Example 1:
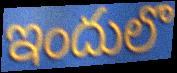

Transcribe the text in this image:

ఇందులొ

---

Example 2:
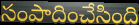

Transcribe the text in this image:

సంపాదించేసింది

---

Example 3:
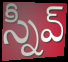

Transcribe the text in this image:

స్నీవ్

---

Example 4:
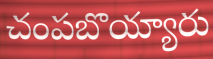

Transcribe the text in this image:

చంపబొయ్యారు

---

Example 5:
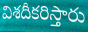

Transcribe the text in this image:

విశదీకరిస్తారు